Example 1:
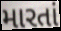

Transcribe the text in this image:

મારતાં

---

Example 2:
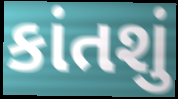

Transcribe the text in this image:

કાંતશું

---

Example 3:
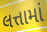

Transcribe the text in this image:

લત્તામાં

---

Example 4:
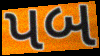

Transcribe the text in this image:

પબ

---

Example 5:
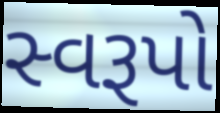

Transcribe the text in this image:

સ્વરૂપો